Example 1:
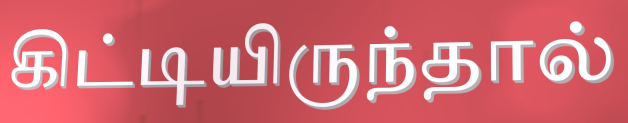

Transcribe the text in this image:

கிட்டியிருந்தால்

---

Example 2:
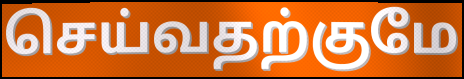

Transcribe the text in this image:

செய்வதற்குமே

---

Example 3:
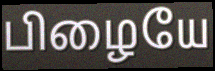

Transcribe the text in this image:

பிழையே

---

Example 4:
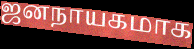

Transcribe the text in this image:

ஜனநாயகமாக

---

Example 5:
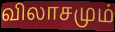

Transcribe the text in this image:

விலாசமும்